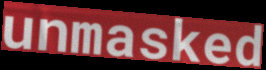
unmasked